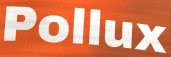
Pollux